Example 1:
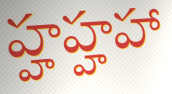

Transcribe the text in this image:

హ్హహ్హహా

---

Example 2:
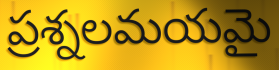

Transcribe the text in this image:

ప్రశ్నలమయమై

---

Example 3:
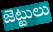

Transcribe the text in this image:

జెట్టులు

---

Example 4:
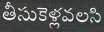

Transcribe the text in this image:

తీసుకెళ్లవలసి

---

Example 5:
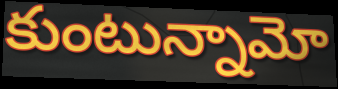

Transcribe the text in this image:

కుంటున్నామో